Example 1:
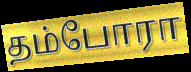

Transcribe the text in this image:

தம்போரா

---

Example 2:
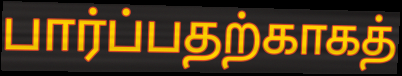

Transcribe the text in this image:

பார்ப்பதற்காகத்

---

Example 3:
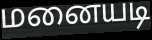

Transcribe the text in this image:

மனையடி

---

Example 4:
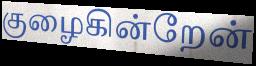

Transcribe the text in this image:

குழைகின்றேன்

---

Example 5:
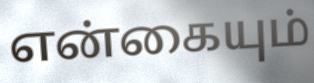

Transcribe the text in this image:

என்கையும்